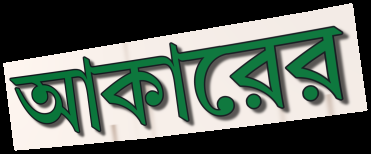
আকারের